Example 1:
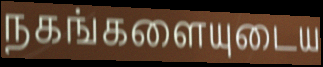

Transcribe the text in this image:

நகங்களையுடைய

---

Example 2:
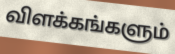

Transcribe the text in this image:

விளக்கங்களும்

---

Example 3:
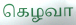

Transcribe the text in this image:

கெழவா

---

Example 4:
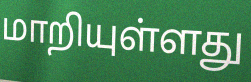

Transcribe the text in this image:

மாறியுள்ளது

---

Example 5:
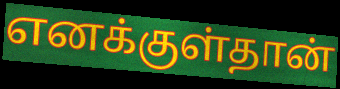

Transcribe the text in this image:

எனக்குள்தான்